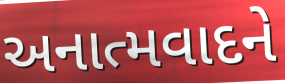
અનાત્મવાદને